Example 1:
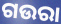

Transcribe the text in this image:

ଗଉରା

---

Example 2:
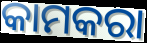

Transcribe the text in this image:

କାମକରା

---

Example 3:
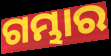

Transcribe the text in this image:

ଗମ୍ଭାର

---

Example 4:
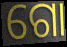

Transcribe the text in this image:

ଗୋ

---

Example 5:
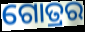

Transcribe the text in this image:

ଗୋତ୍ରର